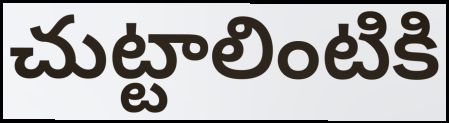
చుట్టాలింటికి